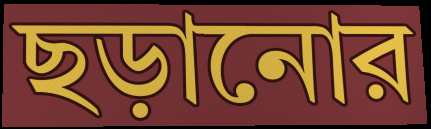
ছড়ানোর